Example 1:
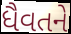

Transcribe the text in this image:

ધૈવતને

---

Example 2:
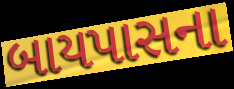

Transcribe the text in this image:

બાયપાસના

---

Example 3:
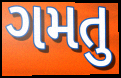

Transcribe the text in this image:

ગમતુ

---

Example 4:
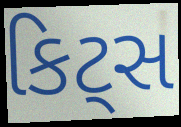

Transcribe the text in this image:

કિટ્સ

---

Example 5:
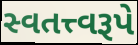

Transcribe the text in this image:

સ્વતત્ત્વરૂપે